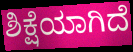
ಶಿಕ್ಷೆಯಾಗಿದೆ